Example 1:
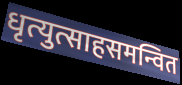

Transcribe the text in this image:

धृत्युत्साहसमन्वित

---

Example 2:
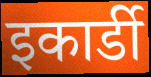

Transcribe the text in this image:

इकार्डी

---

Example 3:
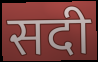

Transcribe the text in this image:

सदी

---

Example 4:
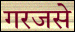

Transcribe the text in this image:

गरजसे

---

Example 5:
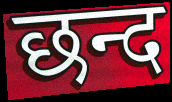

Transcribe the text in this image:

छन्द